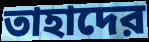
তাহাদের